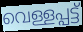
വെള്ളപ്പട്ട്